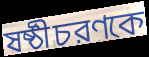
ষষ্ঠীচরণকে